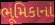
ભૂમિકાનાં